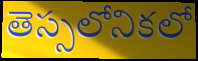
తెస్సలోనికలో